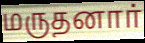
மருதனார்